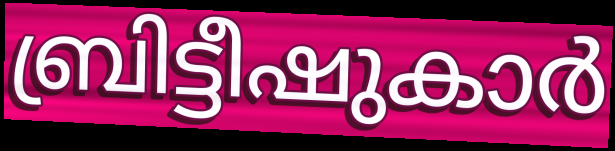
ബ്രിട്ടീഷുകാർ